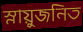
স্নায়ুজনিত